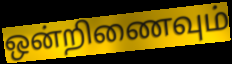
ஒன்றிணைவும்